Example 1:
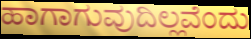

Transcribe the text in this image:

ಹಾಗಾಗುವುದಿಲ್ಲವೆಂದು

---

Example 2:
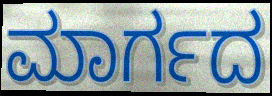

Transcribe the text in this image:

ಮಾರ್ಗದ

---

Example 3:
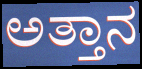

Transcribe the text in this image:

ಅತ್ತಾನ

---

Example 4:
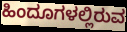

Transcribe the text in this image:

ಹಿಂದೂಗಳಲ್ಲಿರುವ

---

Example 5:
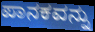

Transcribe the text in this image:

ಪಾನಕವನ್ನು